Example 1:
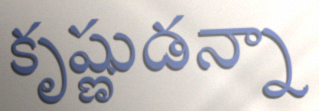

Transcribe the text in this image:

కృష్ణుడన్నా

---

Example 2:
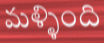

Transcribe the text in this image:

మళ్ళింది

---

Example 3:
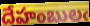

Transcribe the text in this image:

దేహంబులఁ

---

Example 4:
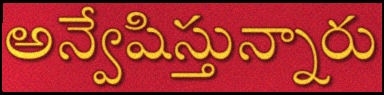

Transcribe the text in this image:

అన్వేషిస్తున్నారు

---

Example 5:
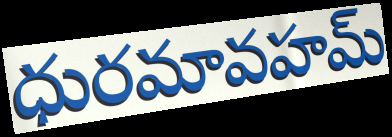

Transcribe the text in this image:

ధురమావహమ్